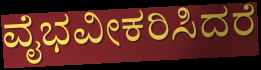
ವೈಭವೀಕರಿಸಿದರೆ